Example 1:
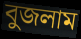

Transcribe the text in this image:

বুজলাম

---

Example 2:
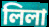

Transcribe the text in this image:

লিলা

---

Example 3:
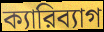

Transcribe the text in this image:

ক্যারিব্যাগ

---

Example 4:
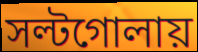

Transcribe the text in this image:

সল্টগোলায়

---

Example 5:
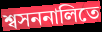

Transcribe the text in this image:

শ্বসননালিতে